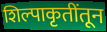
शिल्पाकृतींतून